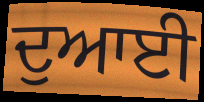
ਦੁਆਈ